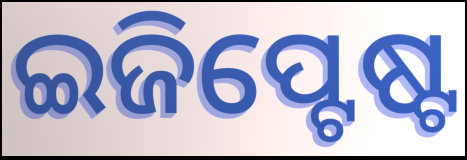
ଇଜିପ୍ଟେଷ୍ଟ